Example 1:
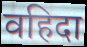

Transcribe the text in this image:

वहिदा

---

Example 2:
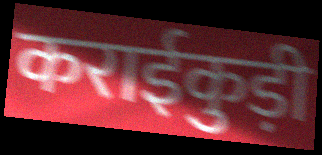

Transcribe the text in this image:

कराईकुड़ी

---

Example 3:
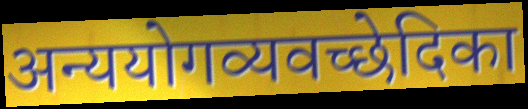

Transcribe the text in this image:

अन्ययोगव्यवच्छेदिका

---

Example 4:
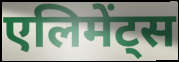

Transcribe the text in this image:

एलिमेंट्स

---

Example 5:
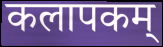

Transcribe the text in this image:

कलापकम्